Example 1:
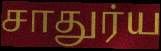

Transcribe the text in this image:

சாதுர்ய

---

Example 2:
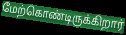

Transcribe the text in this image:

மேற்கொண்டிருக்கிறார்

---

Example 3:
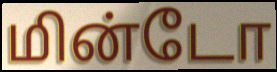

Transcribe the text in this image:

மின்டோ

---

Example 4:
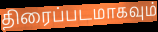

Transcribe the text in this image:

திரைப்படமாகவும்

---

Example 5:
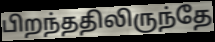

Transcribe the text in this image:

பிறந்ததிலிருந்தே